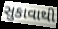
સુકાવાથી